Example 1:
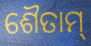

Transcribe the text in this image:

ଶୈତାମ୍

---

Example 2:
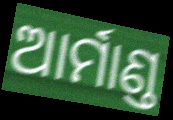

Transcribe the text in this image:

ଆର୍ମାଣ୍ଡ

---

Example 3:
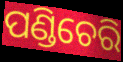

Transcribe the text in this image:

ପଣ୍ଡିଚେରି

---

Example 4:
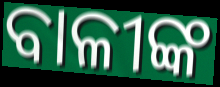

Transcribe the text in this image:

ବାଳୀଙ୍କ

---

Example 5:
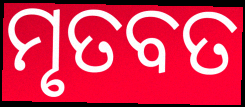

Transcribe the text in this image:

ମୃତବତ